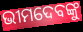
ଭୀମଦେବଙ୍କୁ